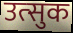
उत्‍सुक